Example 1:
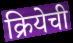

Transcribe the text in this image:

क्रियेची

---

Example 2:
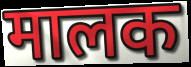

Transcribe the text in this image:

मालक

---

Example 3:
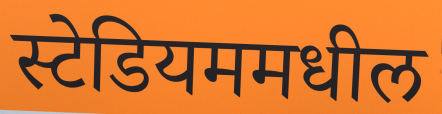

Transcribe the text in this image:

स्टेडियममधील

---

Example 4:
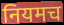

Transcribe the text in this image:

नियमच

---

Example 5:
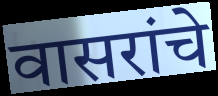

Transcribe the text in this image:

वासरांचे